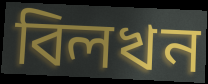
বিলখন